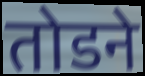
तोडने